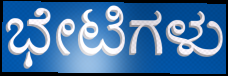
ಭೇಟಿಗಳು